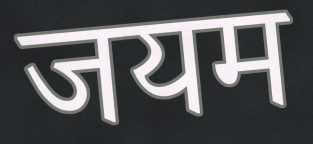
जयम